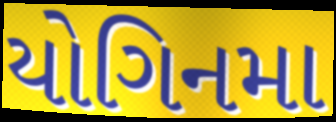
યોગિનમા